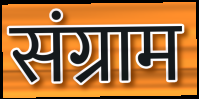
संग्राम